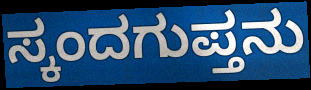
ಸ್ಕಂದಗುಪ್ತನು